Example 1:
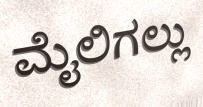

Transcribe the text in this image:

ಮೈಲಿಗಲ್ಲು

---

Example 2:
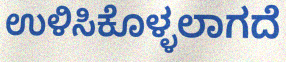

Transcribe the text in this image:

ಉಳಿಸಿಕೊಳ್ಳಲಾಗದೆ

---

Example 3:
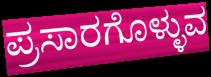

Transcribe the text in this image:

ಪ್ರಸಾರಗೊಳ್ಳುವ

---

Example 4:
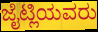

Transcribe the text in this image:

ಜೈಟ್ಲಿಯವರು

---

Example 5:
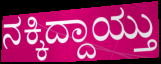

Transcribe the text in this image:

ನಕ್ಕಿದ್ದಾಯ್ತು